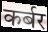
कर्बर